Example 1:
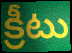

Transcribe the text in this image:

క్రీటు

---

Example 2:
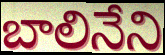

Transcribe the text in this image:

బాలినేని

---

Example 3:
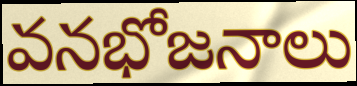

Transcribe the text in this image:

వనభోజనాలు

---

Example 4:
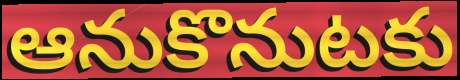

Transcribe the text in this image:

ఆనుకొనుటకు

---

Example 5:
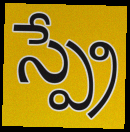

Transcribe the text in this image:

స్ప్రే